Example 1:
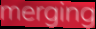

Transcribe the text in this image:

merging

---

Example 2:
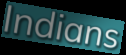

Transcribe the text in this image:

Indians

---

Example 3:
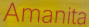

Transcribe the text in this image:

Amanita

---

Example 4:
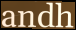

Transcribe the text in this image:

andh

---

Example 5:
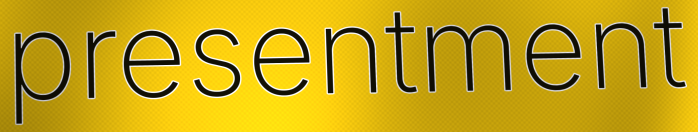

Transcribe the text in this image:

presentment